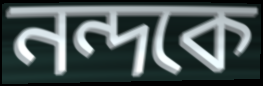
নন্দকে